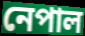
নেপাল